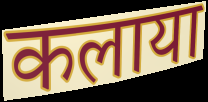
कलाया